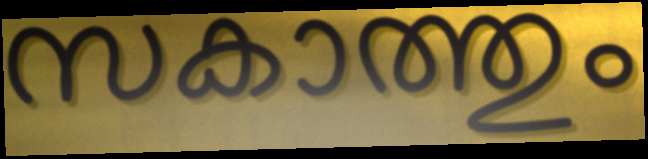
സകാത്തും